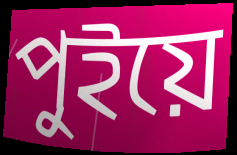
পুইয়ে